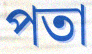
পতা